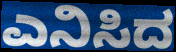
ಎನಿಸಿದ